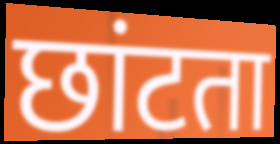
छांटता